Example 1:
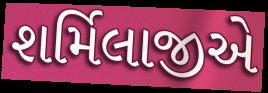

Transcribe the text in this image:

શર્મિલાજીએ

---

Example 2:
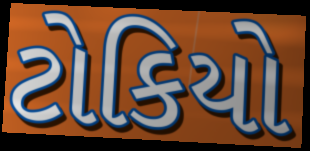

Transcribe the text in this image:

ટોકિયો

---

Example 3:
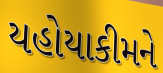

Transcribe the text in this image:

યહોયાકીમને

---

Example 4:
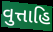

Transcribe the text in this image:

વુત્તાહિ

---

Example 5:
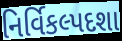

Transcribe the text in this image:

નિર્વિકલ્પદશા